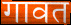
गावत